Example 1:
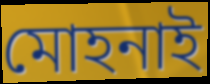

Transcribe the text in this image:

মোহনাই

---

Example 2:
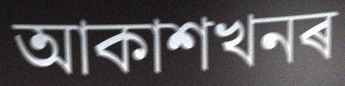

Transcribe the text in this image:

আকাশখনৰ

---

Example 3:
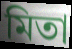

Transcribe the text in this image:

মিতা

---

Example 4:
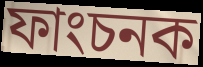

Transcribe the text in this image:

ফাংচনক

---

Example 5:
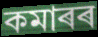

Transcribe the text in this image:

কমাৰৰ